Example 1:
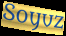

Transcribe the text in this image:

Soyuz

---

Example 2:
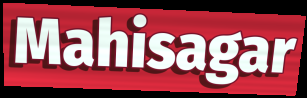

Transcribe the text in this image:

Mahisagar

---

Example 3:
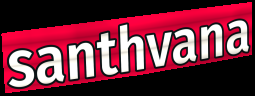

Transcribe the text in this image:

santhvana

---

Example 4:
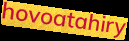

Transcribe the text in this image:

hovoatahiry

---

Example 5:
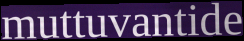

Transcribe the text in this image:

muttuvantide